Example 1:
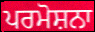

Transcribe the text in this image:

ਪਰਮੋਸ਼ਨਾ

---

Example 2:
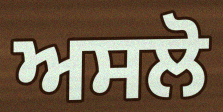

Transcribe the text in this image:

ਅਸਲੋ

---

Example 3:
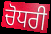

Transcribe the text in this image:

ਚੋਧਰੀ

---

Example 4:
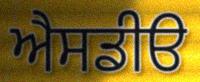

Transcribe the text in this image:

ਐਸਡੀੳ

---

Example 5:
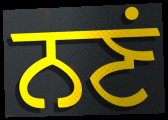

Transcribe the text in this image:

ਨਣਂ